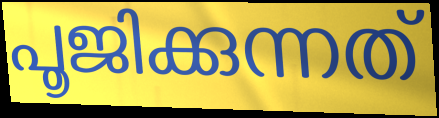
പൂജിക്കുന്നത്